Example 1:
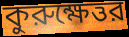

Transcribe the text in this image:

কুরুক্ষেত্তর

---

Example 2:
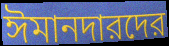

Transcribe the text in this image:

ঈমানদারদের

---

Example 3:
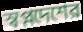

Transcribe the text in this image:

স্বপ্নদেশের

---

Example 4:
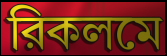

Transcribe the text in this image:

রিকলমে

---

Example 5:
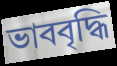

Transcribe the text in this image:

ভাববৃদ্ধি